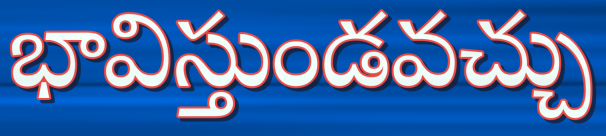
భావిస్తుండవచ్చు